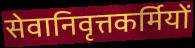
सेवानिवृत्तकर्मियों